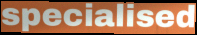
specialised